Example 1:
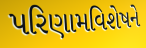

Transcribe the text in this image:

પરિણામવિશેષને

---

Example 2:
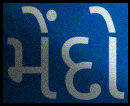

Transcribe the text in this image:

મેંદો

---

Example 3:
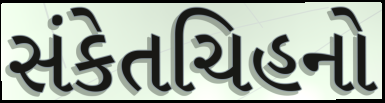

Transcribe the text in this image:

સંકેતચિહનો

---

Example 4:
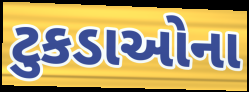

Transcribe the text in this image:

ટુકડાઓના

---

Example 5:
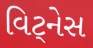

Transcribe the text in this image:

વિટ્નેસ